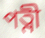
পত্নী